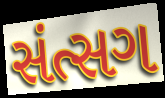
સંત્સગ